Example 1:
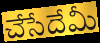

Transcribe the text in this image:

చేసేదేమీ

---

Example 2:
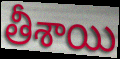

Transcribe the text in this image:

తీశాయి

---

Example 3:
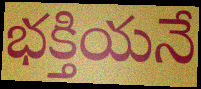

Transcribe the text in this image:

భక్తియనే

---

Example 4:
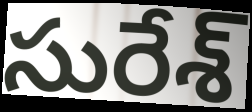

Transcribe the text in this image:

సురేశ్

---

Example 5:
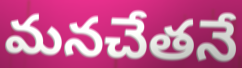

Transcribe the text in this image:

మనచేతనే